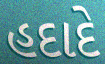
હદાદે